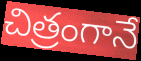
చిత్రంగానే